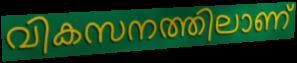
വികസനത്തിലാണ്